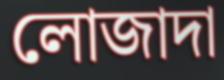
লোজাদা